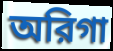
অরিগা